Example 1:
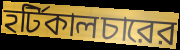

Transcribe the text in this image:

হর্টিকালচারের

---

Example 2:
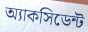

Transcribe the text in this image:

অ্যাকসিডেন্ট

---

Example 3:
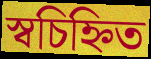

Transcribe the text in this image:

স্বচিহ্নিত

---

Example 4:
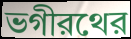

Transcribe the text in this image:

ভগীরথের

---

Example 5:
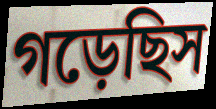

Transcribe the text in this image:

গড়েছিস